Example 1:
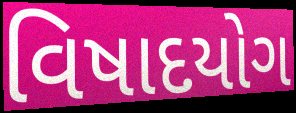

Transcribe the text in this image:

વિષાદયોગ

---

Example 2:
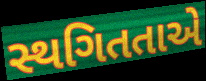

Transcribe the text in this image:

સ્થગિતતાએ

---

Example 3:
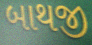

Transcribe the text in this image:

બાથજી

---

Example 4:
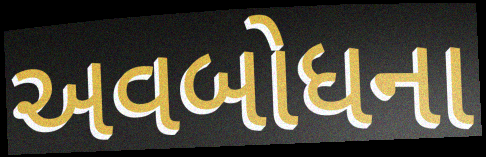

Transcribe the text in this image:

અવબોધના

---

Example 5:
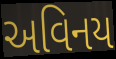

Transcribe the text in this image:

અવિનય